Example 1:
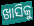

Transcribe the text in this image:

ଖାସିକୁ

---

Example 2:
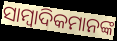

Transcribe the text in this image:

ସାମ୍ବାଦିକମାନଙ୍କ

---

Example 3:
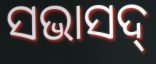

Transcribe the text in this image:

ସଭାସଦ୍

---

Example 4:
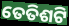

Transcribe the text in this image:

ତେତିଶଟି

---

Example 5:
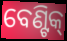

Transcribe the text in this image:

ବେଣ୍ଟିକ୍